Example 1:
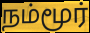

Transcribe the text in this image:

நம்மூர்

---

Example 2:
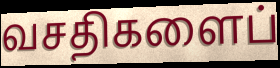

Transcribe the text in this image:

வசதிகளைப்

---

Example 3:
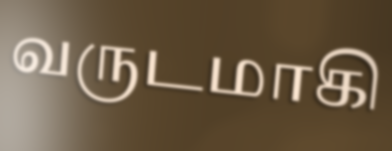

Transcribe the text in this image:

வருடமாகி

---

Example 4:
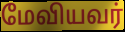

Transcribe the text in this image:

மேவியவர்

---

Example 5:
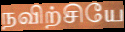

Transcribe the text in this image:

நவிற்சியே